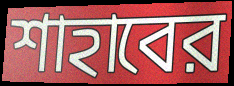
শাহাবের